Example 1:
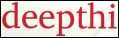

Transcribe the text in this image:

deepthi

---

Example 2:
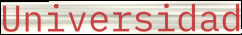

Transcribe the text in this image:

Universidad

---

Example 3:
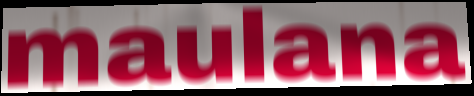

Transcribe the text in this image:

maulana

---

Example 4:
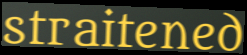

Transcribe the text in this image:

straitened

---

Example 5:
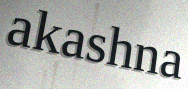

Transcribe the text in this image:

akashna